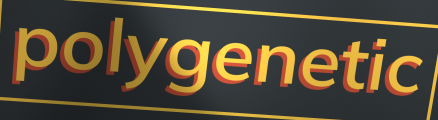
polygenetic